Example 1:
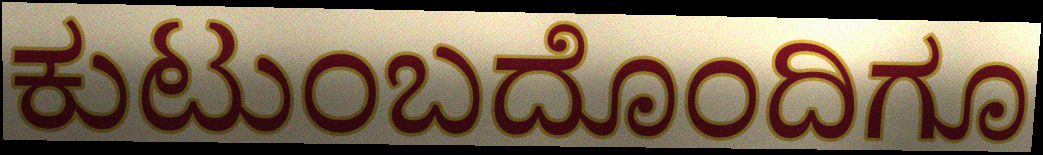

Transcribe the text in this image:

ಕುಟುಂಬದೊಂದಿಗೂ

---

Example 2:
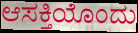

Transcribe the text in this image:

ಆಸಕ್ತಿಯೊಂದು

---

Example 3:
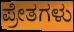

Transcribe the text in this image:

ಪ್ರೇತಗಳು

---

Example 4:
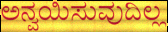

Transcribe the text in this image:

ಅನ್ವಯಿಸುವುದಿಲ್ಲ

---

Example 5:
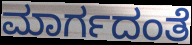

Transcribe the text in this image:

ಮಾರ್ಗದಂತೆ